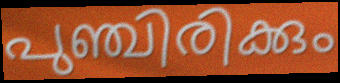
പുഞ്ചിരിക്കും